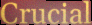
Crucial